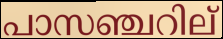
പാസഞ്ചറില്